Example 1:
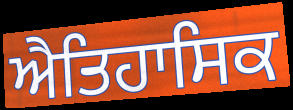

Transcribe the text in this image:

ਐਤਿਹਾਸਿਕ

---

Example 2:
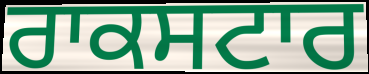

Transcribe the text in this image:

ਰਾਕਸਟਾਰ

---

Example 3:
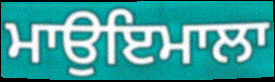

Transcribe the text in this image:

ਮਾਉਇਮਾਲਾ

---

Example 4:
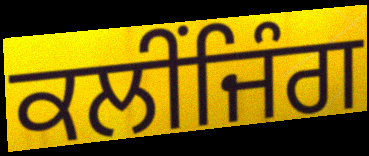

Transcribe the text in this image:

ਕਲੀਂਜਿੰਗ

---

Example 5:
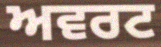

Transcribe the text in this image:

ਅਵਰਟ